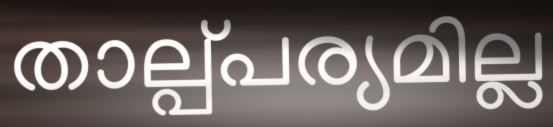
താല്പ്പര്യമില്ല